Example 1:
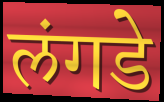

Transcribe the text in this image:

लंगडे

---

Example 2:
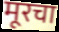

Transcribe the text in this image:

मूरचा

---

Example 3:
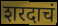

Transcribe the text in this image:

शरदाचं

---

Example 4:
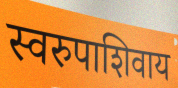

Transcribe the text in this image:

स्वरुपाशिवाय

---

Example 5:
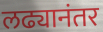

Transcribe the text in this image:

लढ्यानंतर